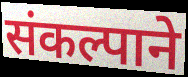
संकल्पाने